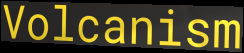
Volcanism